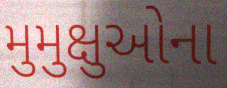
મુમુક્ષુઓના